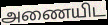
அணையிட